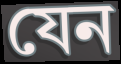
যেন